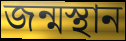
জন্মস্থান